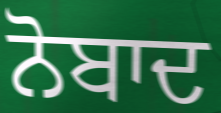
ਨੋਬਾਦ